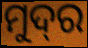
ମୁଦ୍‌ର